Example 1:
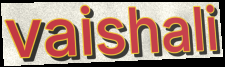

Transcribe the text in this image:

vaishali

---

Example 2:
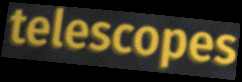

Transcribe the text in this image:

telescopes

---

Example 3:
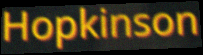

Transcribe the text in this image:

Hopkinson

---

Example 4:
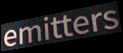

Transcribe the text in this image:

emitters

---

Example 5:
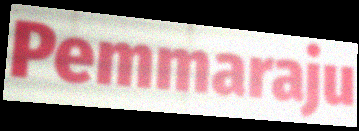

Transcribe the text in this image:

Pemmaraju